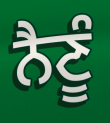
ਨੈਣੂੰ